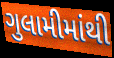
ગુલામીમાંથી